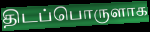
திடப்பொருளாக